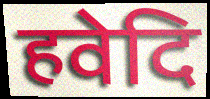
हवेदि